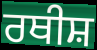
ਰਥੀਸ਼